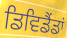
ਡਿਵਿਡੈਂਡਾਂ